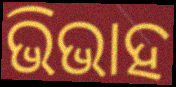
ଭିଭାହ